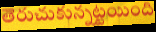
తెరుచుకున్నట్టయింది